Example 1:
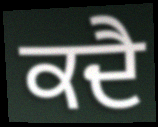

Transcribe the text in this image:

ਕਦੈ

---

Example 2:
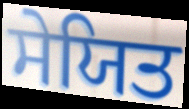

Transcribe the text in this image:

ਸੇਯਿਤ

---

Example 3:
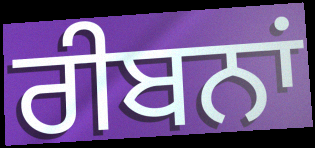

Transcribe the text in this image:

ਰੀਬਨਾਂ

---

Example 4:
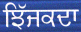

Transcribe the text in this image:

ਝਿੱਜਕਦਾ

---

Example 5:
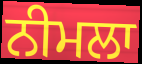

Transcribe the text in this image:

ਨੀਮਲਾ